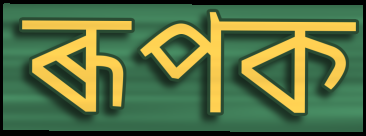
ৰূপক